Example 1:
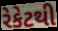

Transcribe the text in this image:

રેકેટથી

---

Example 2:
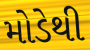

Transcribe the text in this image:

મોડેથી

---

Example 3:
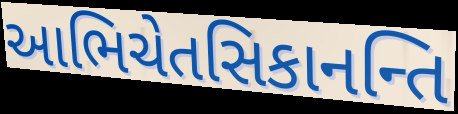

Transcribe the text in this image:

આભિચેતસિકાનન્તિ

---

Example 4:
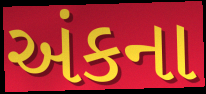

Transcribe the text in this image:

અંકના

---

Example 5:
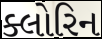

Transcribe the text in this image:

ક્લોરિન